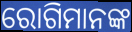
ରୋଗିମାନଙ୍କ